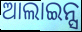
ଆଲାଇନ୍ସ